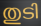
തുടി